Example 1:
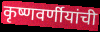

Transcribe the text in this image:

कृष्णवर्णीयांची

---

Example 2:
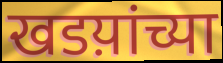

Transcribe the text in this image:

खडय़ांच्या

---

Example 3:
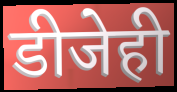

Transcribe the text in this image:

डीजेही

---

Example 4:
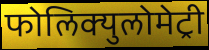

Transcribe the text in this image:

फोलिक्युलोमेट्री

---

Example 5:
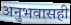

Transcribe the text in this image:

अनुभवासही